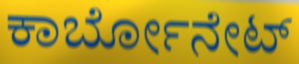
ಕಾರ್ಬೋನೇಟ್